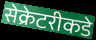
सेक्रेटरीकडे